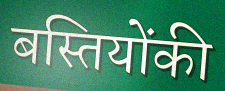
बस्तियोंकी